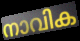
നാവിക